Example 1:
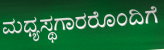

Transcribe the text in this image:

ಮಧ್ಯಸ್ಥಗಾರರೊಂದಿಗೆ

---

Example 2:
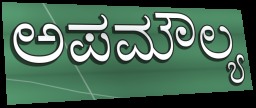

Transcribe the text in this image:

ಅಪಮೌಲ್ಯ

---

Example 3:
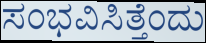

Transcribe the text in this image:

ಸಂಭವಿಸಿತ್ತೆಂದು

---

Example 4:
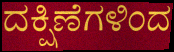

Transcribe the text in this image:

ದಕ್ಷಿಣೆಗಳಿಂದ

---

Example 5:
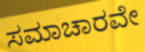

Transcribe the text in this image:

ಸಮಾಚಾರವೇ